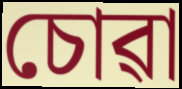
চোৱা